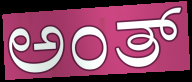
ಅಂತ್